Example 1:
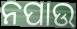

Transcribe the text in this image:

ନପାଉ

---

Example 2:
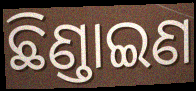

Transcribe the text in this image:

ଛିଣ୍ଡାଇଣ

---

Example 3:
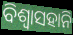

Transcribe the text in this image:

ବିଶ୍ବାସହାନି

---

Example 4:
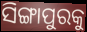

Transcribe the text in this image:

ସିଙ୍ଗାପୁରକୁ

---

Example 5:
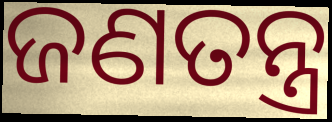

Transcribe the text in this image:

ଜଣତନ୍ତ୍ର